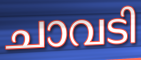
ചാവടി